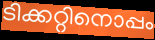
ടിക്കറ്റിനൊപ്പം